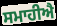
ਸਮਾਹੀਐ